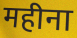
महीना